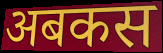
अबकस